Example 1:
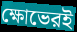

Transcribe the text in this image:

ক্ষোভেরই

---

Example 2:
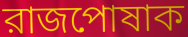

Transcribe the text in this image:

রাজপোষাক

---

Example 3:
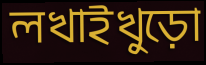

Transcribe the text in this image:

লখাইখুড়ো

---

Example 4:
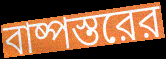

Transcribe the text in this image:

বাষ্পস্তরের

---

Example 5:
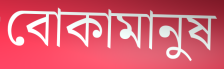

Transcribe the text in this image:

বোকামানুষ